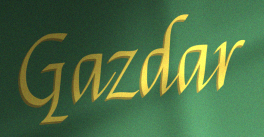
Gazdar